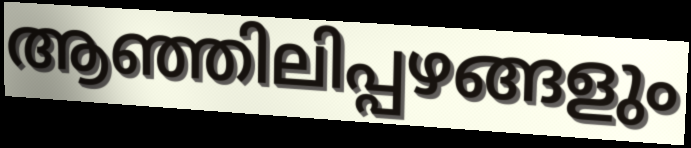
ആഞ്ഞിലിപ്പഴങ്ങളും